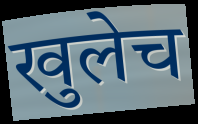
खुलेच